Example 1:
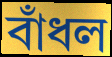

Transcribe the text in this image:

বাঁধল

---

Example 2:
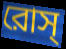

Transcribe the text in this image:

রোস্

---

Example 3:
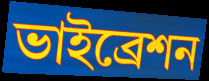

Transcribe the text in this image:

ভাইব্রেশন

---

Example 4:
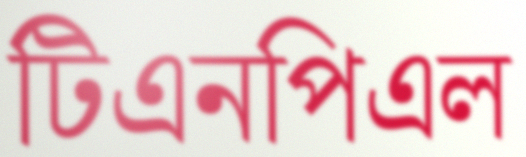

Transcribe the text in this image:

টিএনপিএল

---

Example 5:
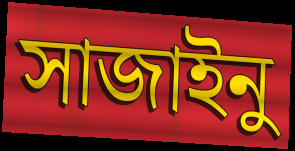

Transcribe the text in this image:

সাজাইনু